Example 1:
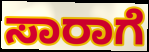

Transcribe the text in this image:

ಸಾರಾಗೆ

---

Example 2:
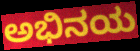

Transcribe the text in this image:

ಅಭಿನಯ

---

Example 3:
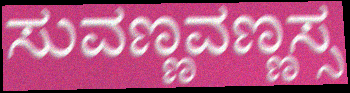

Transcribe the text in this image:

ಸುವಣ್ಣವಣ್ಣಸ್ಸ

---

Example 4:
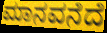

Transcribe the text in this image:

ಮಾನವನೆದೆ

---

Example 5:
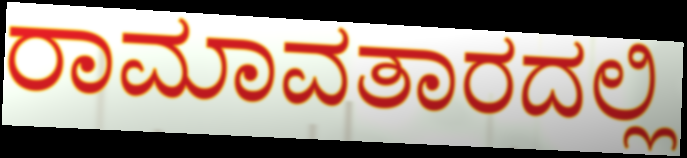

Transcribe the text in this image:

ರಾಮಾವತಾರದಲ್ಲಿ